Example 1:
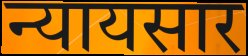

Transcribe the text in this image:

न्यायसार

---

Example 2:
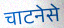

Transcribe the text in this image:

चाटनेसे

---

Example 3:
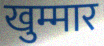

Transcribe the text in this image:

खुम्मार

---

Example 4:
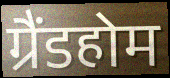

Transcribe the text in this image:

ग्रैंडहोम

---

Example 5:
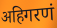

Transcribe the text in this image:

अहिगरणं